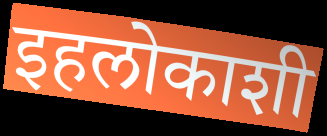
इहलोकाशी